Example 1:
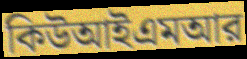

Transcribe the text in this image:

কিউআইএমআর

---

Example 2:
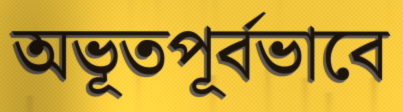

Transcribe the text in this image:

অভূতপূর্বভাবে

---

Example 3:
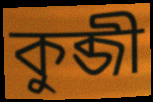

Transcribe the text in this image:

কুব্জী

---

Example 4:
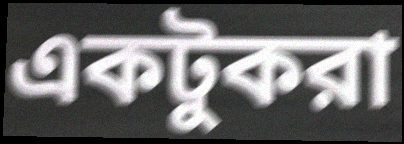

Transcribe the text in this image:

একটুকরা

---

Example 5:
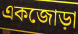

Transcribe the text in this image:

একজোড়া